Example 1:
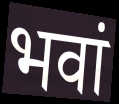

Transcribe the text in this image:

भवां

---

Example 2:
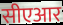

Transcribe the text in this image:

सीएआर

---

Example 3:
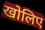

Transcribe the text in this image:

खोलिए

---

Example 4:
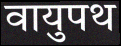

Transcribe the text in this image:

वायुपथ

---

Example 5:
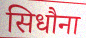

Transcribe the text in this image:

सिधौना